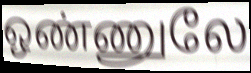
ஒண்ணுலே